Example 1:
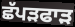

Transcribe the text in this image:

ਛੱਪੜਫਾੜ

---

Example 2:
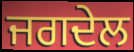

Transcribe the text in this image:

ਜਗਦੇਲ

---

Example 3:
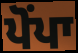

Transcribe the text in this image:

ਪੋਂਪਾ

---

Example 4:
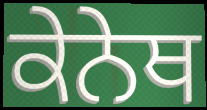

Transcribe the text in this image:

ਕੇਨੇਥ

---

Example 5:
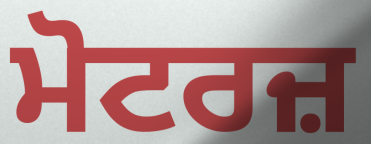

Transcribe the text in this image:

ਮੋਟਰਜ਼